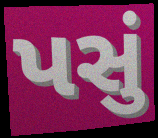
પસું